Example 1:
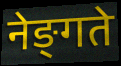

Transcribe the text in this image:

नेङ्गते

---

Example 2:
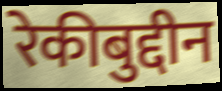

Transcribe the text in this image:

रेकीबुद्दीन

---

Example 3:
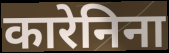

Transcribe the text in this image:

कारेनिना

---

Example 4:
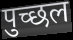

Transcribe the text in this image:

पुच्छल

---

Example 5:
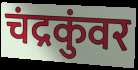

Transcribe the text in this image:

चंद्रकुंवर